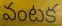
వంటక